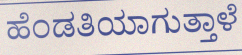
ಹೆಂಡತಿಯಾಗುತ್ತಾಳೆ